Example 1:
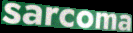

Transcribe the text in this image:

sarcoma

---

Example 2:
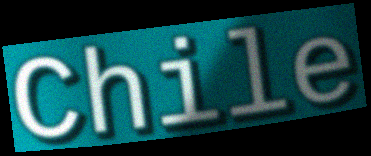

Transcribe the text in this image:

Chile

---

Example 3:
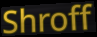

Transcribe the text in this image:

Shroff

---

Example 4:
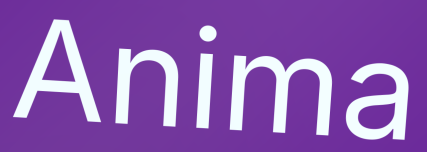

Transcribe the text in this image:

Anima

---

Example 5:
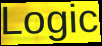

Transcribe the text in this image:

Logic